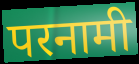
परनामी